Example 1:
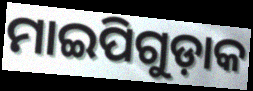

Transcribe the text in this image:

ମାଇପିଗୁଡ଼ାକ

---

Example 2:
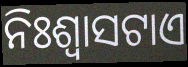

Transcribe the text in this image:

ନିଃଶ୍ଵାସଟାଏ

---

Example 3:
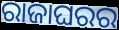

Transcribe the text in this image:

ରାଜାଘରର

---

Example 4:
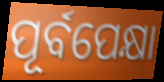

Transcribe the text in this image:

ପୂର୍ବପେକ୍ଷା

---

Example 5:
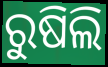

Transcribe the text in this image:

ରୁଷିଲି